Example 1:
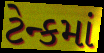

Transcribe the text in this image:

ટેન્કમાં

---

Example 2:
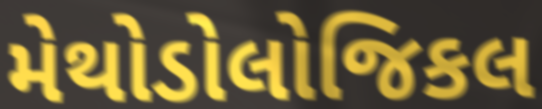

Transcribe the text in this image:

મેથોડોલોજિકલ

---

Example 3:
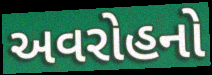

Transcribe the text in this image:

અવરોહનો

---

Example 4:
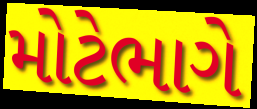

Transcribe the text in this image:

મોટેભાગે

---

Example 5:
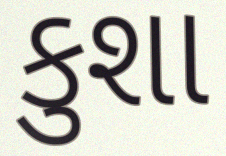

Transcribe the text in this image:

કુશા